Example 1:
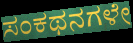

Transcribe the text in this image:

ಸಂಕಥನಗಳೇ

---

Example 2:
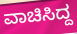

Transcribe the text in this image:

ವಾಚಿಸಿದ್ದ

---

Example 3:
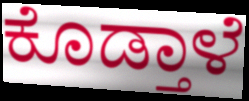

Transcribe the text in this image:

ಕೊಡ್ತಾಳೆ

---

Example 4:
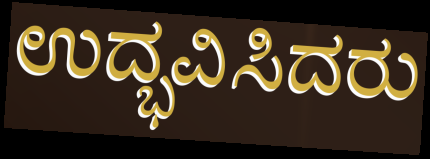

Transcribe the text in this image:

ಉದ್ಭವಿಸಿದರು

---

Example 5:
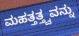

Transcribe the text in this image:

ಮಹತ್ತತ್ತ್ವವನ್ನು